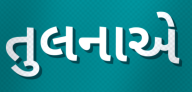
તુલનાએ